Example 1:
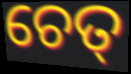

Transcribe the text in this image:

ଚେତ୍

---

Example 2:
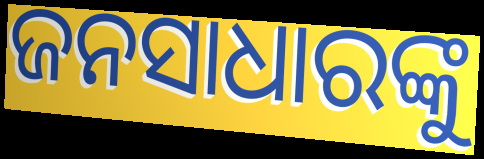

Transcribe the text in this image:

ଜନସାଧାରଙ୍କୁ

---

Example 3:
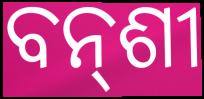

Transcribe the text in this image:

ବନ୍‌ଶୀ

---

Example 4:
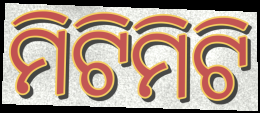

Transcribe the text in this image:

ମିଟିମିଟି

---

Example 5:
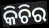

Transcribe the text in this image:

କିଚିର